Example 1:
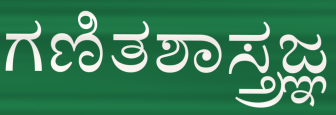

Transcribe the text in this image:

ಗಣಿತಶಾಸ್ತ್ರಜ್ಞ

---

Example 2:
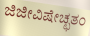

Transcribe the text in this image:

ಜಿಜೀವಿಷೇಚ್ಛತಂ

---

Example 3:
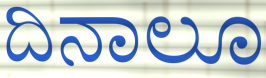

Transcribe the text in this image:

ದಿನಾಲೂ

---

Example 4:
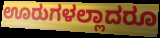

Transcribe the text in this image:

ಊರುಗಳಲ್ಲಾದರೂ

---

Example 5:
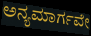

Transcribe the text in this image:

ಅನ್ಯಮಾರ್ಗವೇ